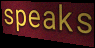
speaks